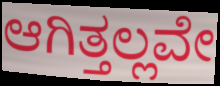
ಆಗಿತ್ತಲ್ಲವೇ